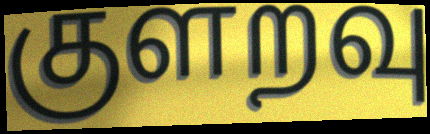
குளறவு